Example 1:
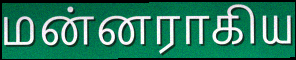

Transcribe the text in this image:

மன்னராகிய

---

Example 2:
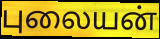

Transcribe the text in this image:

புலையன்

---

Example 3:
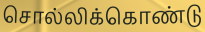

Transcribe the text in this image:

சொல்லிக்கொண்டு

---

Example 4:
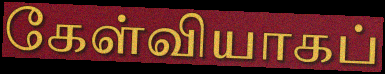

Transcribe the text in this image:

கேள்வியாகப்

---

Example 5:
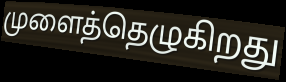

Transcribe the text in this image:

முளைத்தெழுகிறது